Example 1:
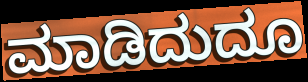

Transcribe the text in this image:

ಮಾಡಿದುದೂ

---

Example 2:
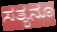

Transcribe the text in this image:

ಸತ್ಯನೂ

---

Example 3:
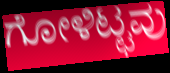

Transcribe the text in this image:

ಗೋಳಿಟ್ಟವು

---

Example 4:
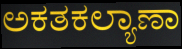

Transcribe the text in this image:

ಅಕತಕಲ್ಯಾಣಾ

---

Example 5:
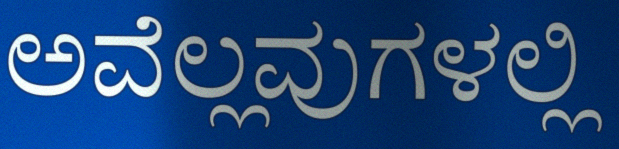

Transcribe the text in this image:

ಅವೆಲ್ಲವುಗಳಲ್ಲಿ